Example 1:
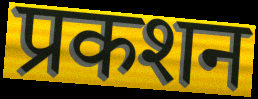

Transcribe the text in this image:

प्रकशन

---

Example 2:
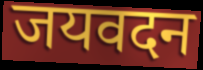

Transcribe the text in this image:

जयवदन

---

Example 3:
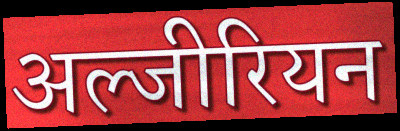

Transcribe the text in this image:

अल्जीरियन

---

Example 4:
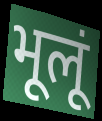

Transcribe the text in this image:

भूलूं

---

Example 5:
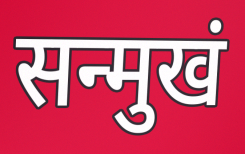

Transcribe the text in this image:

सन्मुखं